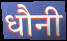
धौनी